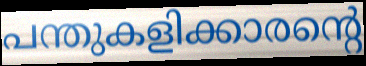
പന്തുകളിക്കാരന്റെ